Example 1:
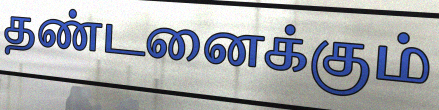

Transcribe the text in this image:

தண்டனைக்கும்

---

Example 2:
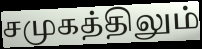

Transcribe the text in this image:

சமுகத்திலும்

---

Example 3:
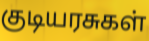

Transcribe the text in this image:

குடியரசுகள்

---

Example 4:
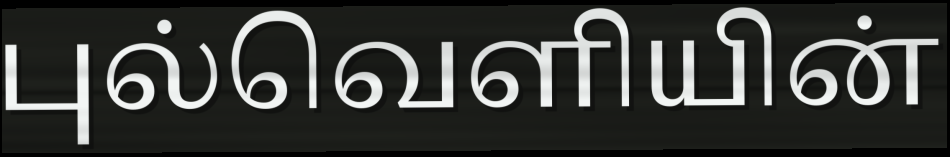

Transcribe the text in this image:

புல்வெளியின்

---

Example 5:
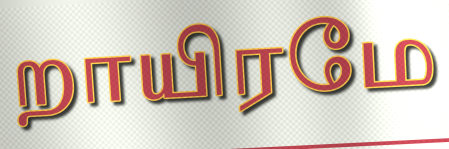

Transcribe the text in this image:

றாயிரமே